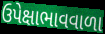
ઉપેક્ષાભાવવાળા